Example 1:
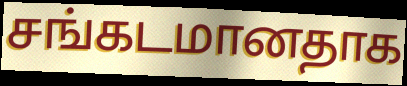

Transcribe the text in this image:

சங்கடமானதாக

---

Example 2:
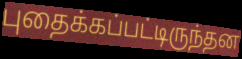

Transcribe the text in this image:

புதைக்கப்பட்டிருந்தன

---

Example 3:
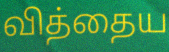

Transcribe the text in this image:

வித்தைய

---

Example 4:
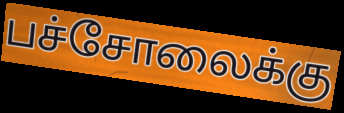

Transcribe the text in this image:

பச்சோலைக்கு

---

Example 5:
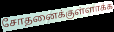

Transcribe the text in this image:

சோதனைக்குள்ளாக்க